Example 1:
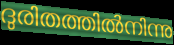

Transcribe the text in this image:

ദുരിതത്തിൽനിന്നു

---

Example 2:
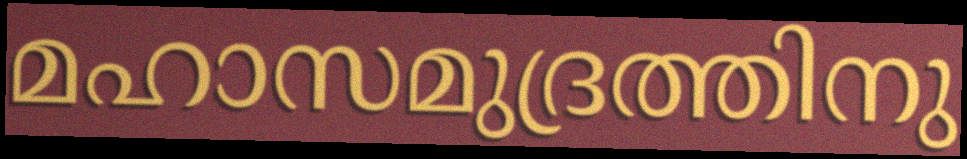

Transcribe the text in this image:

മഹാസമുദ്രത്തിനു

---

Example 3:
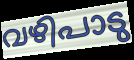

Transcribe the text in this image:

വഴിപാടു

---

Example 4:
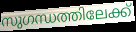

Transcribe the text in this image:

സുഗന്ധത്തിലേക്ക്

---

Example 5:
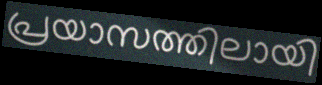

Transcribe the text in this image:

പ്രയാസത്തിലായി